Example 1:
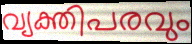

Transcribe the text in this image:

വ്യക്തിപരവും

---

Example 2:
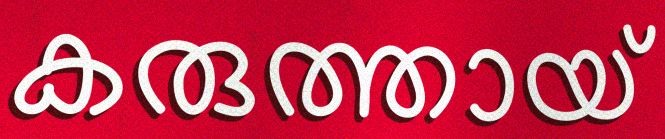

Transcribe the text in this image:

കരുത്തായ്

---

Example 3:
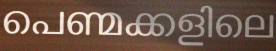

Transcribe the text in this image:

പെണ്മക്കളിലെ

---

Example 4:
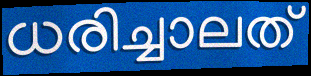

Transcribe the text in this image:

ധരിച്ചാലത്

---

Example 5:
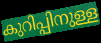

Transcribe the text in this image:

കുറിപ്പിനുള്ള